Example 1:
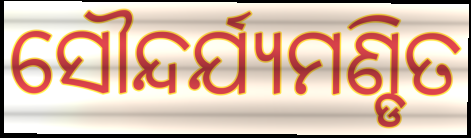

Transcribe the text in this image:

ସୌନ୍ଦର୍ଯ୍ୟମଣ୍ଡିତ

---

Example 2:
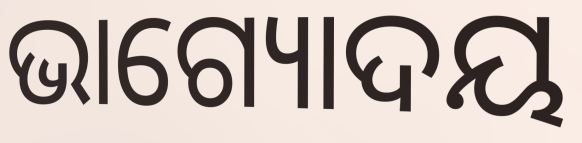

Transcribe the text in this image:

ଭାଗ୍ୟୋଦୟ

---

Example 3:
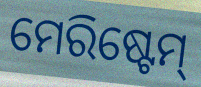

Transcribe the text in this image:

ମେରିଷ୍ଟେମ୍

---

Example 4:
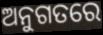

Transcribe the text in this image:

ଅନୁଗତରେ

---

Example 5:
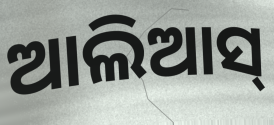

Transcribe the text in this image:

ଆଲିଆସ୍